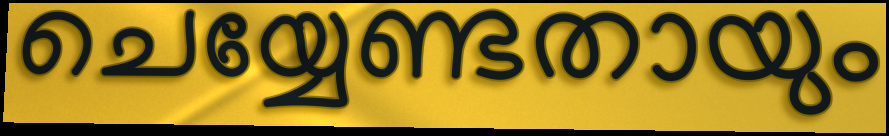
ചെയ്യേണ്ടതായും